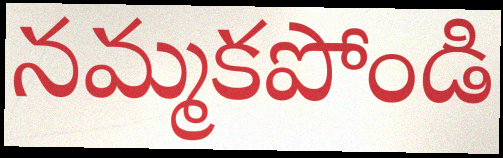
నమ్మకపోండి